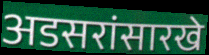
अडसरांसारखे